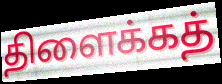
திளைக்கத்